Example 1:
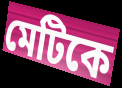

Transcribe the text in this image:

মেটিকে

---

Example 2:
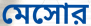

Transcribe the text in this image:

মেসোর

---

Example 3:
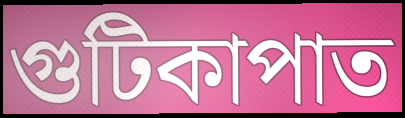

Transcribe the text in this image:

গুটিকাপাত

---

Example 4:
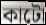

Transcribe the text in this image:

কাটো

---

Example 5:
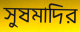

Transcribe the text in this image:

সুষমাদির